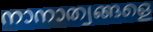
നാനാത്വങ്ങളെ